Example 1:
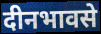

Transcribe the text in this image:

दीनभावसे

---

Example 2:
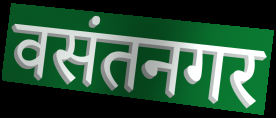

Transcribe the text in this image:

वसंतनगर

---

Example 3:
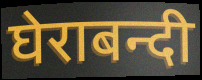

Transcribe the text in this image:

घेराबन्दी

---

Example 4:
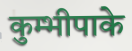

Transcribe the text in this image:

कुम्भीपाके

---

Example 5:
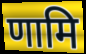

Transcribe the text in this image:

णामि